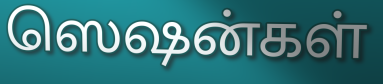
ஸெஷன்கள்